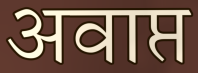
अवाप्त